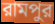
রামপুর